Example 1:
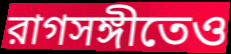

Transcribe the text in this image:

রাগসঙ্গীতেও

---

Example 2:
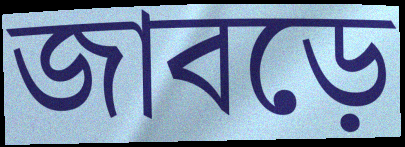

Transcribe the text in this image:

জাবড়ে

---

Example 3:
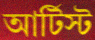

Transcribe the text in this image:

আর্টিস্ট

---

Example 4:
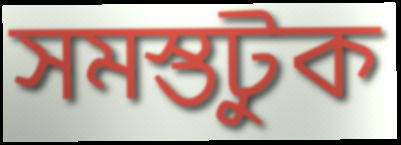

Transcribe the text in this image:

সমস্তটুক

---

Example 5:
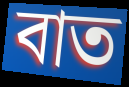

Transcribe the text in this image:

বাত